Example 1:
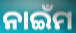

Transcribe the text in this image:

ନାଇଁମ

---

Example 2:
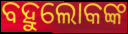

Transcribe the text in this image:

ବହୁଲୋକଙ୍କ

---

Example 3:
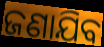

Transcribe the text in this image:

ଜଣାଯିବ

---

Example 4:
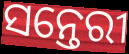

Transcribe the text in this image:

ସନ୍ତେରୀ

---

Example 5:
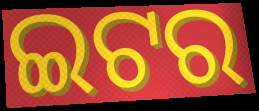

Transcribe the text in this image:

ଇଟର